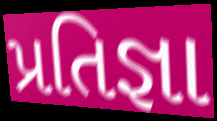
પ્રતિજ્ઞા